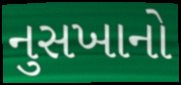
નુસખાનો